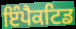
ਇੰਪੈਕਟਿਡ